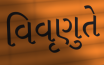
વિવૃણુતે